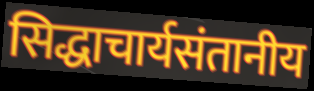
सिद्धाचार्यसंतानीय